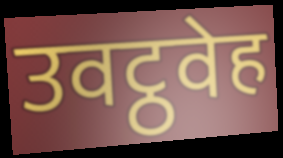
उवट्ठवेह